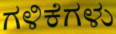
ಗಳಿಕೆಗಳು